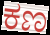
ಕಣ